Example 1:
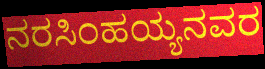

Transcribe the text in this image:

ನರಸಿಂಹಯ್ಯನವರ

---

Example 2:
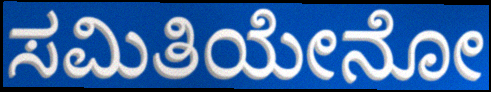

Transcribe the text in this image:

ಸಮಿತಿಯೇನೋ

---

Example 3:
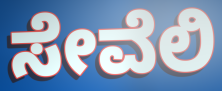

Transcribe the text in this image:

ಸೇವೆಲಿ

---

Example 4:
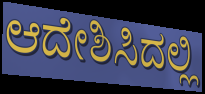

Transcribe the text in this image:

ಆದೇಶಿಸಿದಲ್ಲಿ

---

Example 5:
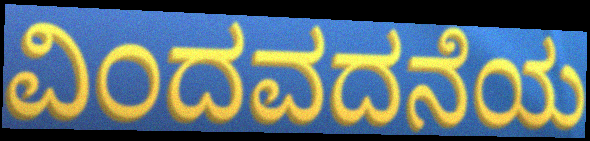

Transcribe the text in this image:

ವಿಂದವದನೆಯ